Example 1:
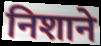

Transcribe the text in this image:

निशाने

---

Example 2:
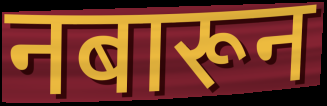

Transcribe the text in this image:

नबारून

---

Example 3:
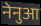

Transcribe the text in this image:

नेनुआ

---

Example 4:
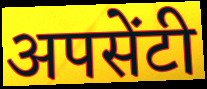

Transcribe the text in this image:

अपसेंटी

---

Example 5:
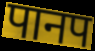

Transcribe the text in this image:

पानप